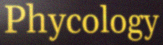
Phycology